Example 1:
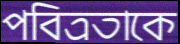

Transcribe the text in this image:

পবিত্রতাকে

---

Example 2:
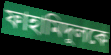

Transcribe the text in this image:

ফাহামিদুলকে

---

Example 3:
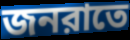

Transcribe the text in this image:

জনরাতে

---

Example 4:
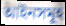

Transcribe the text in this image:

আইনসমূহ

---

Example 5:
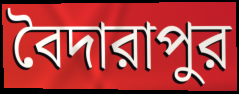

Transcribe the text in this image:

বৈদারাপুর